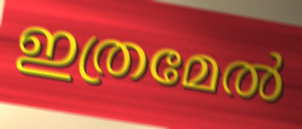
ഇത്രമേൽ